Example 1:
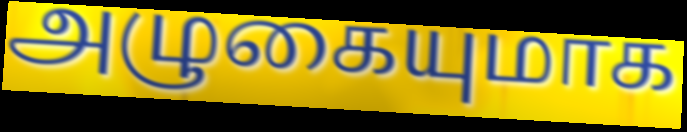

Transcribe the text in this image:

அழுகையுமாக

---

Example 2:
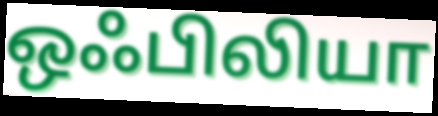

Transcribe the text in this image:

ஒஃபிலியா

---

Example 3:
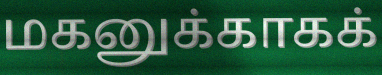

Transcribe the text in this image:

மகனுக்காகக்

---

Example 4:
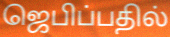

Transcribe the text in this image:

ஜெபிப்பதில்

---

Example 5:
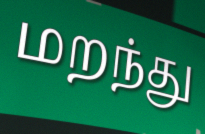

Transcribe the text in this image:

மறந்து